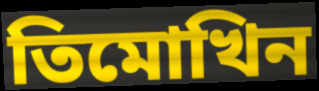
তিমোখিন